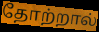
தோற்றால்